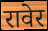
रावेर